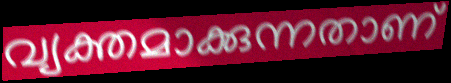
വ്യക്തമാക്കുന്നതാണ്